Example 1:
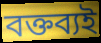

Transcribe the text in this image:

বক্তব্যই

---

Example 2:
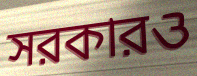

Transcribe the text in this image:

সরকারও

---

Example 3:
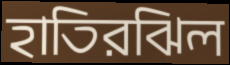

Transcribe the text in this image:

হাতিরঝিল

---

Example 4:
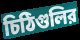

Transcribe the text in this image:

চিঠিগুলির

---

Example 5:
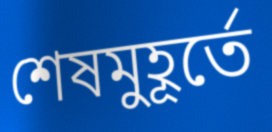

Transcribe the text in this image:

শেষমুহূর্তে